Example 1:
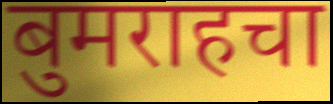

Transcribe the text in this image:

बुमराहचा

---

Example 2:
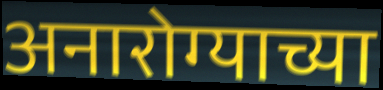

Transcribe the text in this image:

अनारोग्याच्या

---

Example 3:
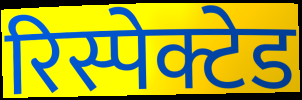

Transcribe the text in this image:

रिस्पेक्टेड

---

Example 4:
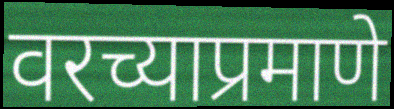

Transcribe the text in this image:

वरच्याप्रमाणे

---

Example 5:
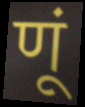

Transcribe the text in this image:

णूं